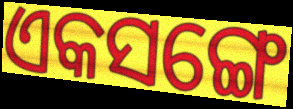
ଏକସଙ୍ଗେ